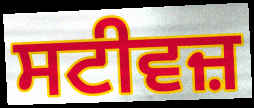
ਸਟੀਵਜ਼